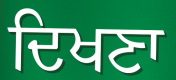
ਦਿਖਣਾ